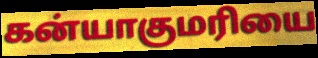
கன்யாகுமரியை